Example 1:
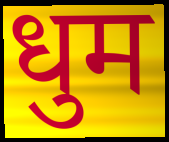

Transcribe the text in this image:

धुम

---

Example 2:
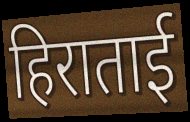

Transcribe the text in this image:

हिराताई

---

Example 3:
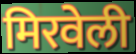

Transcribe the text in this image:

मिरवेली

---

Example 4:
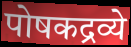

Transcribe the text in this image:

पोषकद्रव्ये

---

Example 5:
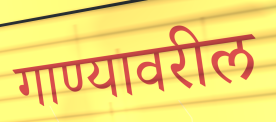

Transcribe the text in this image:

गाण्यावरील